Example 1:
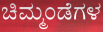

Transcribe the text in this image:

ಚಿಮ್ಮಂಡೆಗಳ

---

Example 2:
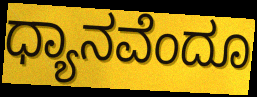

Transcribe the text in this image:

ಧ್ಯಾನವೆಂದೂ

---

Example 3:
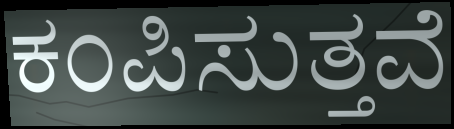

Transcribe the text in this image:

ಕಂಪಿಸುತ್ತವೆ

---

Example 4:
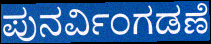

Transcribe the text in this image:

ಪುನರ್ವಿಂಗಡಣೆ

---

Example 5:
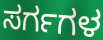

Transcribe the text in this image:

ಸರ್ಗಗಳ